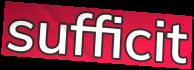
sufficit